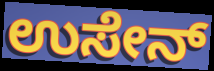
ಉಸೇನ್